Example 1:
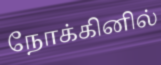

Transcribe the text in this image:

நோக்கினில்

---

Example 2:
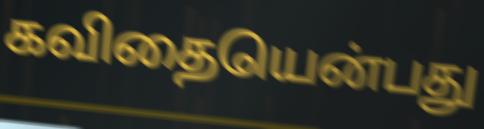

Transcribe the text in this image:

கவிதையென்பது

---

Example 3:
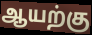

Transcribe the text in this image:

ஆயற்கு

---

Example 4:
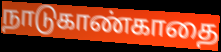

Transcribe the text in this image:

நாடுகாண்காதை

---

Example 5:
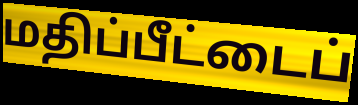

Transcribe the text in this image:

மதிப்பீட்டைப்